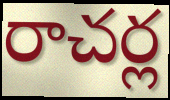
రాచర్ల